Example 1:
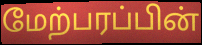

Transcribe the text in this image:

மேற்பரப்பின்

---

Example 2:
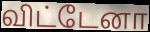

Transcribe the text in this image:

விட்டேனா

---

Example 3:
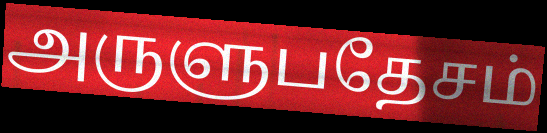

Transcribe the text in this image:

அருளுபதேசம்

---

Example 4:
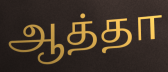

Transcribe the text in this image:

ஆத்தா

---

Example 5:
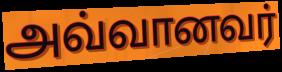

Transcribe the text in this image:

அவ்வானவர்